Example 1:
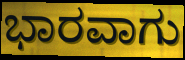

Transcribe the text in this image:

ಭಾರವಾಗು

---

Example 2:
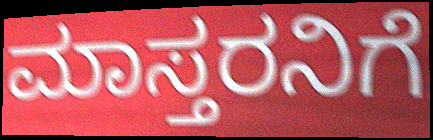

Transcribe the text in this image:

ಮಾಸ್ತರನಿಗೆ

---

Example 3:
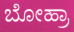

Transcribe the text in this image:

ಬೋಹ್ರಾ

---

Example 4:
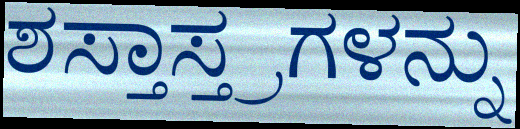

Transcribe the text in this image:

ಶಸ್ತಾಸ್ತ್ರಗಳನ್ನು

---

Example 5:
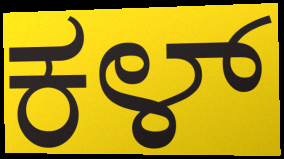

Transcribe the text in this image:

ಕಳ್